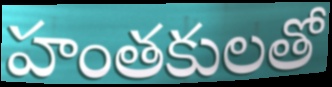
హంతకులతో